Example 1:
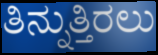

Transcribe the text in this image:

ತಿನ್ನುತ್ತಿರಲು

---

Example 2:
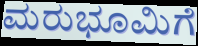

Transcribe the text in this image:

ಮರುಭೂಮಿಗೆ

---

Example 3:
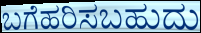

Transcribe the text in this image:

ಬಗೆಹರಿಸಬಹುದು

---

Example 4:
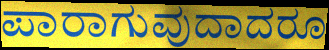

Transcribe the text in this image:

ಪಾರಾಗುವುದಾದರೂ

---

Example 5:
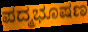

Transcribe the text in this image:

ಪದ್ಮಭೂಷಣ